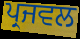
ਪ੍ਰਜਵਲ